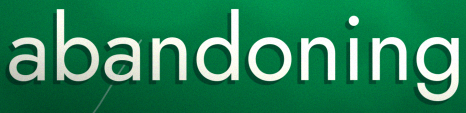
abandoning